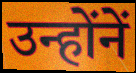
उन्‍होंनें